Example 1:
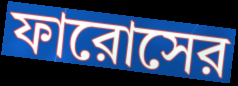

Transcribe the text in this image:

ফারোসের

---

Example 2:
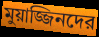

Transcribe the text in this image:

মুয়াজ্জিনদের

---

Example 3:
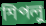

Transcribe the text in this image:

শিপলু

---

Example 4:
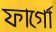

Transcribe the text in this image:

ফার্গো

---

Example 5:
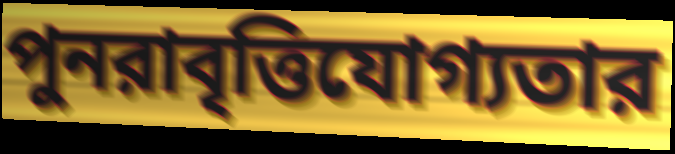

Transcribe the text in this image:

পুনরাবৃত্তিযোগ্যতার